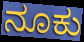
ನೂಕು